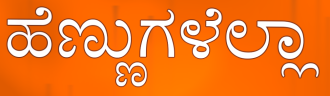
ಹೆಣ್ಣುಗಳೆಲ್ಲಾ